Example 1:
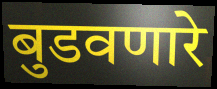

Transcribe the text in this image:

बुडवणारे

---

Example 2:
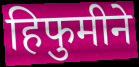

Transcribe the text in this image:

हिफुमीने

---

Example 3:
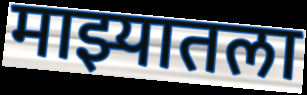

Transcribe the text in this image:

माझ्यातला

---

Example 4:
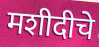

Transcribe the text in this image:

मशीदीचे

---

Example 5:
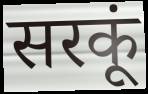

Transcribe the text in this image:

सरकूं